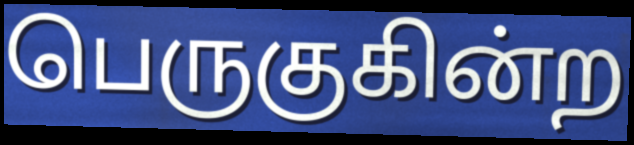
பெருகுகின்ற